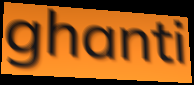
ghanti